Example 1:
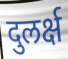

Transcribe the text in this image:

दुलर्क्ष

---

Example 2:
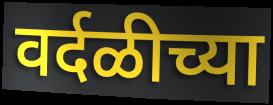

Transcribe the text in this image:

वर्दळीच्या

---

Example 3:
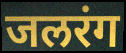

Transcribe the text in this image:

जलरंग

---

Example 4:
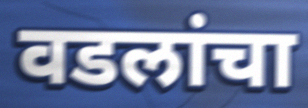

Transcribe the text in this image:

वडलांचा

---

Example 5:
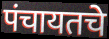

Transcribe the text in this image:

पंचायतचे